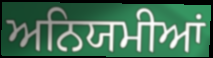
ਅਨਿਯਮੀਆਂ